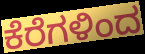
ಕೆರೆಗಳಿಂದ